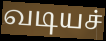
வடியச்